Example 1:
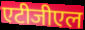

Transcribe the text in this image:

एटीजीएल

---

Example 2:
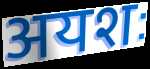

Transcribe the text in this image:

अयशः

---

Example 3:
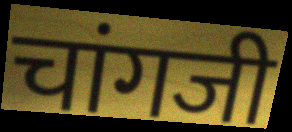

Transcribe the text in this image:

चांगजी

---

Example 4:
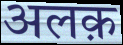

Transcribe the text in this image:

अलक़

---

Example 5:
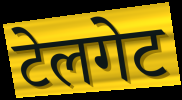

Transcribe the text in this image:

टेलगेट